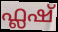
ഫ്ലഷ്